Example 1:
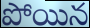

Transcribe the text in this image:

పోయిన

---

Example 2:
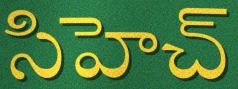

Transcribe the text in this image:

సిహెచ్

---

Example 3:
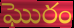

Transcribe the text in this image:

ఘొరం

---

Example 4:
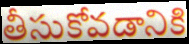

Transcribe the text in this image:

తీసుకోవడానికి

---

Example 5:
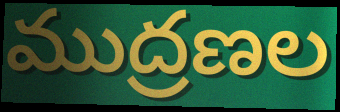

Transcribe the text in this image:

ముద్రణల